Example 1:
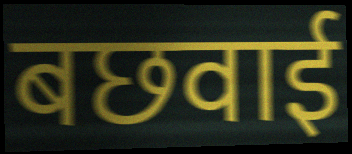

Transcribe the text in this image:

बछवाई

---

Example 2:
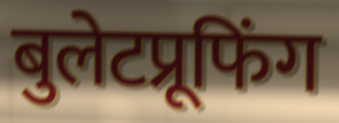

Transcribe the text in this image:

बुलेटप्रूफिंग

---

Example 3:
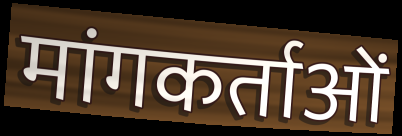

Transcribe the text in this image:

मांगकर्ताओं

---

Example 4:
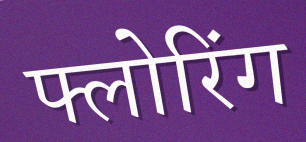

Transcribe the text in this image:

फ्लोरिंग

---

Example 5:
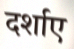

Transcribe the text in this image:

दर्शाए